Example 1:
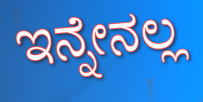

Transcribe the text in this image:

ಇನ್ನೇನಲ್ಲ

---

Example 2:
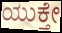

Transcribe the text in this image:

ಯುಕ್ತೇ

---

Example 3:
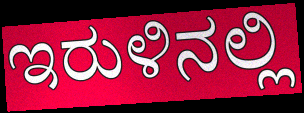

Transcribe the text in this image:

ಇರುಳಿನಲ್ಲಿ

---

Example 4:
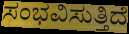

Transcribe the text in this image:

ಸಂಭವಿಸುತ್ತಿದೆ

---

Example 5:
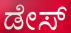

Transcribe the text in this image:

ಡೇಸ್